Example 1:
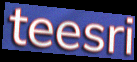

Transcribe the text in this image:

teesri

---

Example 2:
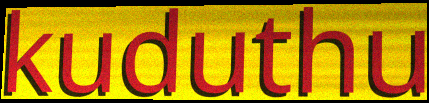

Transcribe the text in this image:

kuduthu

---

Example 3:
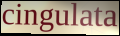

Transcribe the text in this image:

cingulata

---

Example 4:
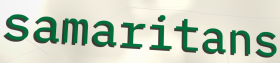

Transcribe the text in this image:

samaritans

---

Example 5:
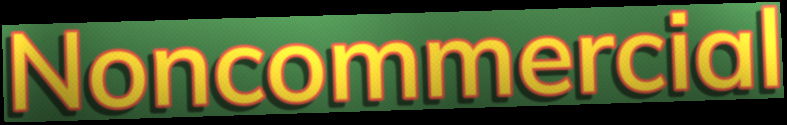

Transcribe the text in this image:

Noncommercial